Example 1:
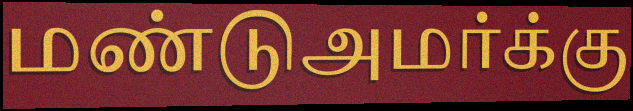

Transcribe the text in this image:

மண்டுஅமர்க்கு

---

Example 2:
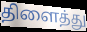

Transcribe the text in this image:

திளைத்து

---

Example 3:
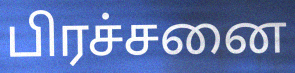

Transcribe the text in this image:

பிரச்சனை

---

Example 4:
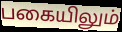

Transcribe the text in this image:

பகையிலும்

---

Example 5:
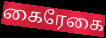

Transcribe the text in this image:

கைரேகை